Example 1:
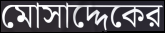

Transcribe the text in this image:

মোসাদ্দেকের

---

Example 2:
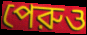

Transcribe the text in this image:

পেরুও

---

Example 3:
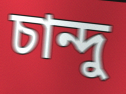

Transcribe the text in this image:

চান্দু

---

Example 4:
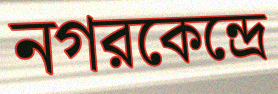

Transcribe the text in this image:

নগরকেন্দ্রে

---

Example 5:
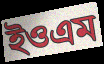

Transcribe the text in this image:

ইওএম